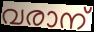
വരാന്